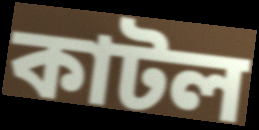
কাটল